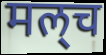
मल्च